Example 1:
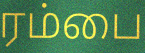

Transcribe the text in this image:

ரம்பை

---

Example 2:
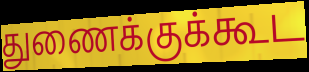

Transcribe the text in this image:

துணைக்குக்கூட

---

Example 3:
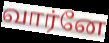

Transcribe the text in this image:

வார்னே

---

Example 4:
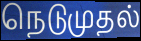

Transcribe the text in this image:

நெடுமுதல்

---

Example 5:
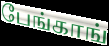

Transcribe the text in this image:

பேங்காங்